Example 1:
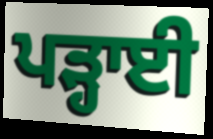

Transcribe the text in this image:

ਪੜ੍ਹਾਈ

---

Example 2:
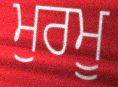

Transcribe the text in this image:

ਮੁਰਮੂ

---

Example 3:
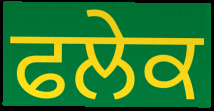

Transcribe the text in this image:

ਫਲੇਕ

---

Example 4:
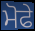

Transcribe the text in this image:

ਮੋਫੇ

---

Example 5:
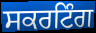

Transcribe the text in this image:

ਸਕਰਟਿੰਗ